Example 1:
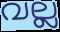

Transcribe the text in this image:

വല്ല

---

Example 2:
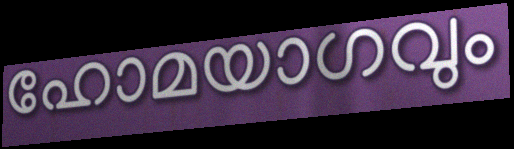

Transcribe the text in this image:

ഹോമയാഗവും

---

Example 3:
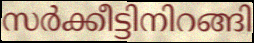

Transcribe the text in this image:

സർക്കീട്ടിനിറങ്ങി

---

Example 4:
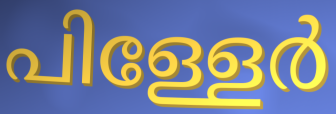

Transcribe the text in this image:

പിള്ളേർ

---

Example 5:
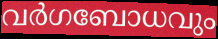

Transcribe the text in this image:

വർഗബോധവും